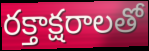
రక్తాక్షరాలతో